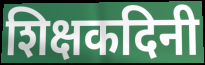
शिक्षकदिनी